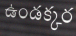
ఉండక్కర